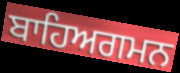
ਬਾਹਿਅਗਮਨ